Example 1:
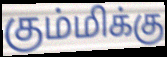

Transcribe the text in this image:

கும்மிக்கு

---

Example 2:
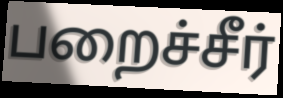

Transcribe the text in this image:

பறைச்சீர்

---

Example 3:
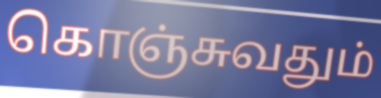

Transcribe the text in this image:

கொஞ்சுவதும்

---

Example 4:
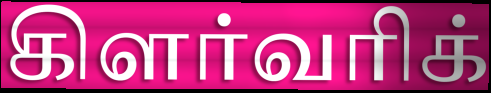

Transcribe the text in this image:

கிளர்வரிக்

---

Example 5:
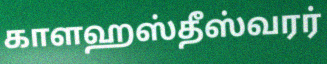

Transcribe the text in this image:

காளஹஸ்தீஸ்வரர்